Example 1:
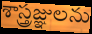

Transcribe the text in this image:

శాస్త్రజ్ఞులను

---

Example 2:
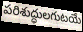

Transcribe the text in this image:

పరిశుద్ధులగుటయే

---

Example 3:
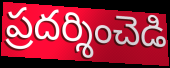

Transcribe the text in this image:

ప్రదర్శించెడి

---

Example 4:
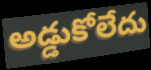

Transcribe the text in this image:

అడ్డుకోలేదు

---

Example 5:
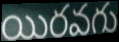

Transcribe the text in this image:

యిరవగు